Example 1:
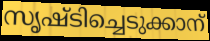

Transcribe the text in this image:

സൃഷ്ടിച്ചെടുക്കാന്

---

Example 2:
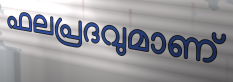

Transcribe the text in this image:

ഫലപ്രദവുമാണ്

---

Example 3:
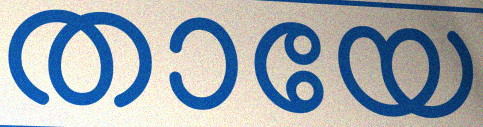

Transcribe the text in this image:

തായേ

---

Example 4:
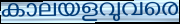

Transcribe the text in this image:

കാലയളവുവരെ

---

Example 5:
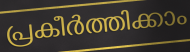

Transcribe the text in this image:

പ്രകീർത്തിക്കാം